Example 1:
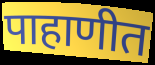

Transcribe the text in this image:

पाहाणीत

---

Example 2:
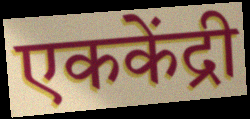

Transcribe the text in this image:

एककेंद्री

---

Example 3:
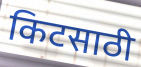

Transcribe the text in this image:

किटसाठी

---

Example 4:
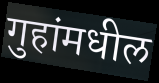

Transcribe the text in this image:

गुहांमधील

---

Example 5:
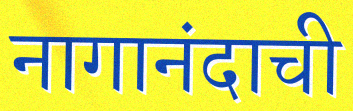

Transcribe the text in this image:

नागानंदाची